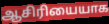
ஆசிரியையாக